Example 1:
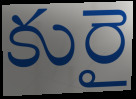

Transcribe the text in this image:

కురై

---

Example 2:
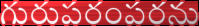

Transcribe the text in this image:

గురుపరంపరను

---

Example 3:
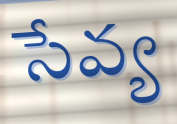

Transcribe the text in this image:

సేవ్య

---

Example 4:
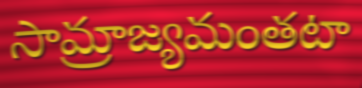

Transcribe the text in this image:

సామ్రాజ్యమంతటా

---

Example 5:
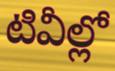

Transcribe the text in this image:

టివీల్లో